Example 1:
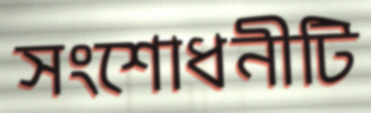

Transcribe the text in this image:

সংশোধনীটি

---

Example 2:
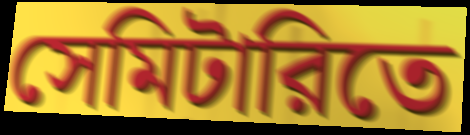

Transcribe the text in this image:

সেমিটারিতে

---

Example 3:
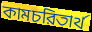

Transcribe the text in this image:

কামচরিতার্থ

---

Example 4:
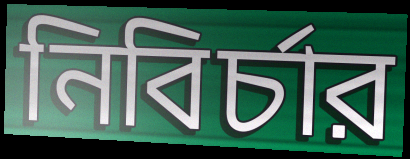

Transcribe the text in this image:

নিবির্চার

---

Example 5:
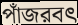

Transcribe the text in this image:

পাঁজরবৎ